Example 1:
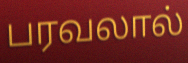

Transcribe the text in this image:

பரவலால்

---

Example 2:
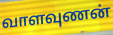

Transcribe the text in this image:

வாளவுணன்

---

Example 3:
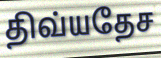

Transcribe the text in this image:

திவ்யதேச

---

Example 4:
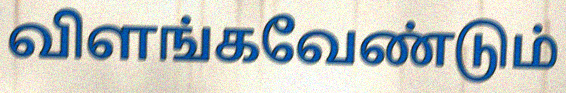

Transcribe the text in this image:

விளங்கவேண்டும்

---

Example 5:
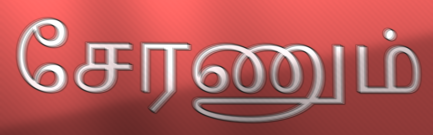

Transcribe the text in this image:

சேரணும்